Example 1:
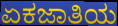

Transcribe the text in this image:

ಏಕಜಾತಿಯ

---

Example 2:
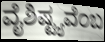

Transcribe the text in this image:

ವೈಶಿಷ್ಟ್ಯವೆಂಬ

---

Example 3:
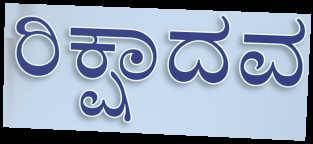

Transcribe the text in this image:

ರಿಕ್ಷಾದವ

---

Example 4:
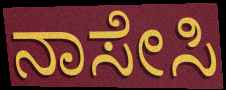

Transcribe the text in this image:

ನಾಸೇಸಿ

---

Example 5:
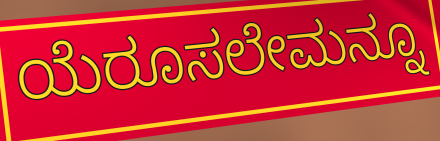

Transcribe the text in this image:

ಯೆರೂಸಲೇಮನ್ನೂ